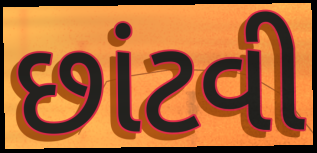
છાંટવી